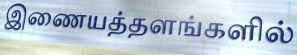
இணையத்தளங்களில்